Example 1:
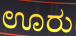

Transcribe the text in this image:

ಊರು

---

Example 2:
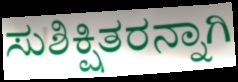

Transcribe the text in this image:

ಸುಶಿಕ್ಷಿತರನ್ನಾಗಿ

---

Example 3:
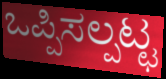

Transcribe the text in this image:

ಒಪ್ಪಿಸಲ್ಪಟ್ಟ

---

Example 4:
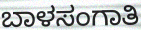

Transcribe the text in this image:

ಬಾಳಸಂಗಾತಿ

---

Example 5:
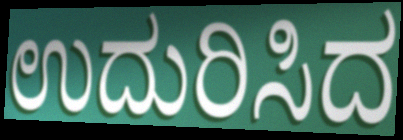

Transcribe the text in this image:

ಉದುರಿಸಿದ